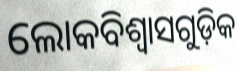
ଲୋକବିଶ୍ୱାସଗୁଡ଼ିକ